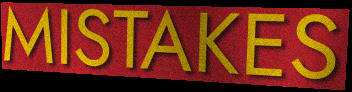
MISTAKES